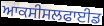
ਆਕਸੀਸਲਫਾਈਡ